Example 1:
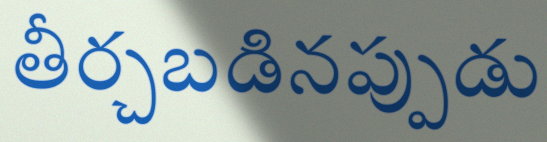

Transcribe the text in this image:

తీర్చబడినప్పుడు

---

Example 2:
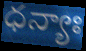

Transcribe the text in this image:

ధన్యాః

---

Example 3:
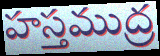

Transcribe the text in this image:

హస్తముద్ర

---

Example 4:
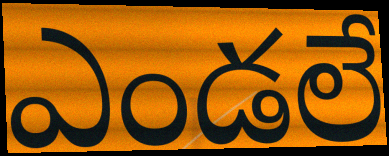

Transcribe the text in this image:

ఎండలే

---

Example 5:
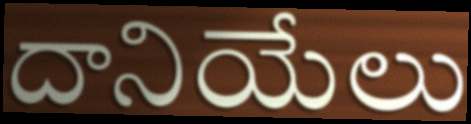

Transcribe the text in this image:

దానియేలు